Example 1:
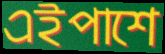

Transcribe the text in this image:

এইপাশে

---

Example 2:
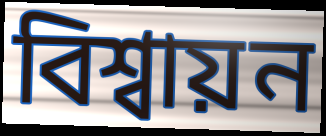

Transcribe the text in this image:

বিশ্বায়ন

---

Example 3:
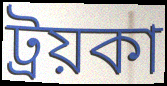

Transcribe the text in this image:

ট্রয়কা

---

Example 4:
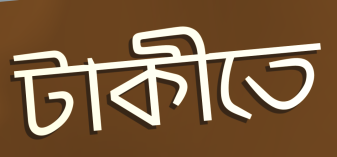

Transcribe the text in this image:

টাকীতে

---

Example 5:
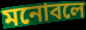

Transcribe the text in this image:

মনোবলে